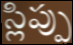
స్లిప్పు